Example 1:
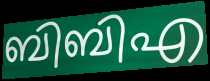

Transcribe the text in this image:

ബിബിഎ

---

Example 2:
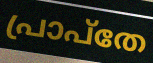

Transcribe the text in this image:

പ്രാപ്തേ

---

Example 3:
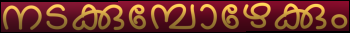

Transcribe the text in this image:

നടക്കുമ്പോഴേക്കും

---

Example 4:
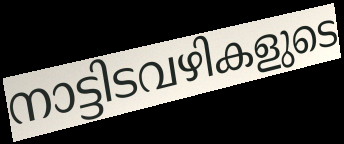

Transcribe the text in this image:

നാട്ടിടവഴികളുടെ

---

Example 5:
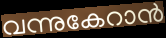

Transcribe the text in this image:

വന്നുകേറാൻ